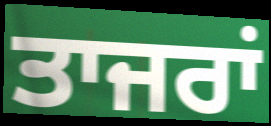
ਤਾਜਰਾਂ